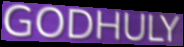
GODHULY